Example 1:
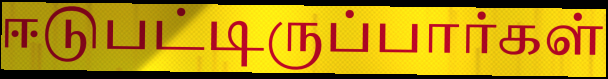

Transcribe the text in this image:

ஈடுபட்டிருப்பார்கள்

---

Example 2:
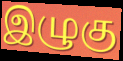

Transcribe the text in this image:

இழுகு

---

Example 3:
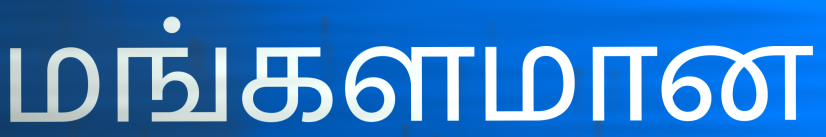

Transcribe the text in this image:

மங்களமான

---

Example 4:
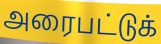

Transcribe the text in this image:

அரைபட்டுக்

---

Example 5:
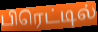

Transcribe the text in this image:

பிரெட்டில்